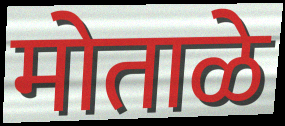
मोताळे